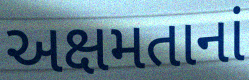
અક્ષમતાનાં